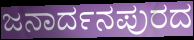
ಜನಾರ್ದನಪುರದ